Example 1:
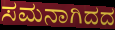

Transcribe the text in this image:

ಸಮನಾಗಿದದ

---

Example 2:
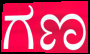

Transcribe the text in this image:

ಗಣ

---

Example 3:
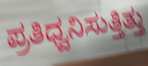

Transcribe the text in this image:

ಪ್ರತಿಧ್ವನಿಸುತ್ತಿತ್ತು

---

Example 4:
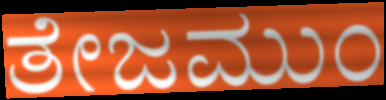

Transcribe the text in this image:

ತೇಜಮುಂ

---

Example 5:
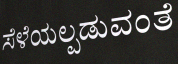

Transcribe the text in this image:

ಸೆಳೆಯಲ್ಪಡುವಂತೆ